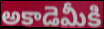
అకాడెమీకి